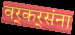
वर्कर्संना